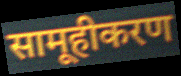
सामूहीकरण